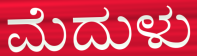
ಮೆದುಳು